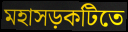
মহাসড়কটিতে